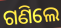
ଗଣିଲେ